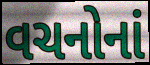
વચનોનાં